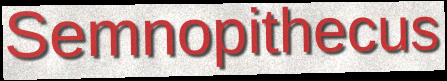
Semnopithecus